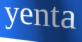
yenta